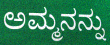
ಅಮ್ಮನನ್ನು